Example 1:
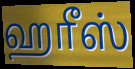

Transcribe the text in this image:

ஹரீஸ்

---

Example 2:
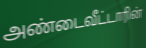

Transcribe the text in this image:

அண்டைவீட்டாரின்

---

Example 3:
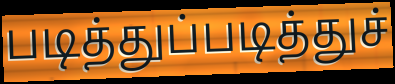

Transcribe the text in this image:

படித்துப்படித்துச்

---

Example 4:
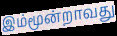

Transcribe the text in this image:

இம்மூன்றாவது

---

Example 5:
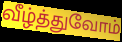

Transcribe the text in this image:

வீழ்த்துவோம்